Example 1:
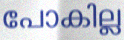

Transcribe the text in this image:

പോകില്ല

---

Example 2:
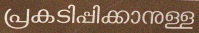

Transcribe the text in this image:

പ്രകടിപ്പിക്കാനുള്ള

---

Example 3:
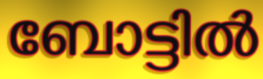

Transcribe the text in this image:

ബോട്ടിൽ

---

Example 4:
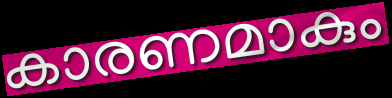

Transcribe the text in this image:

കാരണമാകും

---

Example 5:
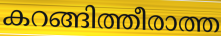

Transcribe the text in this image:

കറങ്ങിത്തീരാത്ത